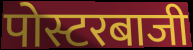
पोस्टरबाजी